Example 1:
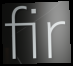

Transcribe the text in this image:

fir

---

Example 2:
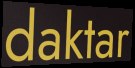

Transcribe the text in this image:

daktar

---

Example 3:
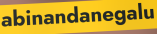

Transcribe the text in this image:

abinandanegalu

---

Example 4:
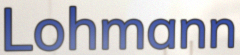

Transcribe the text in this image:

Lohmann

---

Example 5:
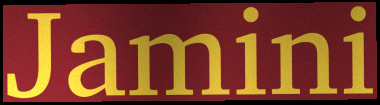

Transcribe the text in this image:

Jamini